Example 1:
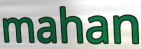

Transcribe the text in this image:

mahan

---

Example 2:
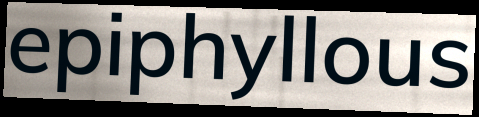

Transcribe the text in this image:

epiphyllous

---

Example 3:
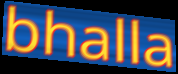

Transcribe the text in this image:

bhalla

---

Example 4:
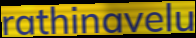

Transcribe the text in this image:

rathinavelu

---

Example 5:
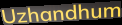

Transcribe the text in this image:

Uzhandhum